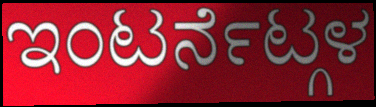
ಇಂಟರ್ನೆಟ್ಗಳ